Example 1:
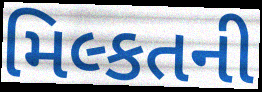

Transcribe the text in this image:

મિલ્કતની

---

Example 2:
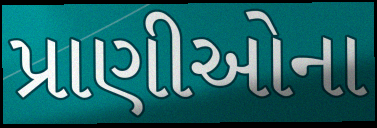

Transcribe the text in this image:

પ્રાણીઓના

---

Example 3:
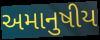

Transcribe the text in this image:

અમાનુષીય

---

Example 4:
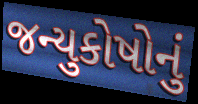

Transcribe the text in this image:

જન્યુકોષોનું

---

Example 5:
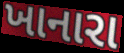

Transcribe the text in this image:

ખાનારા